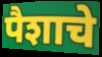
पैशाचे